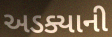
અડક્યાની